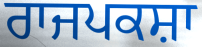
ਰਾਜਪਕਸ਼ਾ